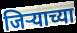
जिऱ्याच्या